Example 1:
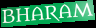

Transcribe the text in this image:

BHARAM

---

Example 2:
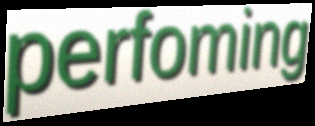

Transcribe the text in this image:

perfoming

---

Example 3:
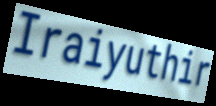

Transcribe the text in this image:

Iraiyuthir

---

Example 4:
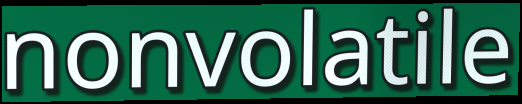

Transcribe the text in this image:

nonvolatile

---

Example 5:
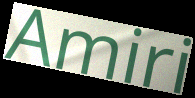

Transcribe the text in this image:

Amiri